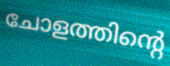
ചോളത്തിന്റെ